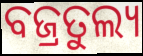
ବଜ୍ରତୁଲ୍ୟ